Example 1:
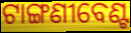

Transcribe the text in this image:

ଟାଙ୍ଗଣୀବେଣ୍ଟ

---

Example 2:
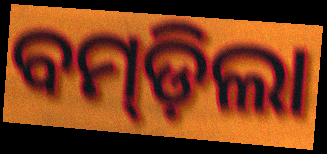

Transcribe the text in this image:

ବମ୍‍ଡ଼ିଲା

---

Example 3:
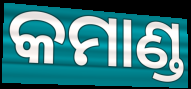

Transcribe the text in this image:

କମାଣ୍ଡ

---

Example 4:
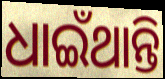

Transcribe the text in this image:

ଧାଇଁଥାନ୍ତି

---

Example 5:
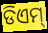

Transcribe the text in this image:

ଡିଏମ୍